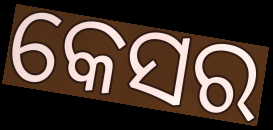
କେସର